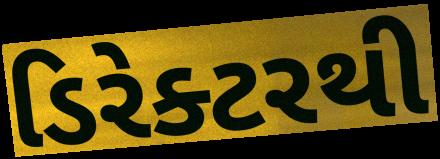
ડિરેક્ટરથી